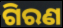
ଗିରଣ